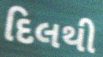
દિલથી